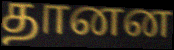
தானன